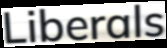
Liberals